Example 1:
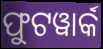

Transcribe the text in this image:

ଫୁଟୱାର୍କ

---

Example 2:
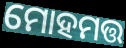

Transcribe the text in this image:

ମୋହମତ୍ତ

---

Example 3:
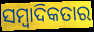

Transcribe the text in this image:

ସମ୍ୱାଦିକତାର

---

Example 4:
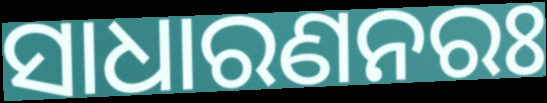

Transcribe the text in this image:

ସାଧାରଣନରଃ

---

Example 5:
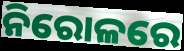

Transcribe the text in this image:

ନିରୋଳରେ